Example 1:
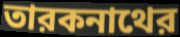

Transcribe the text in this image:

তারকনাথের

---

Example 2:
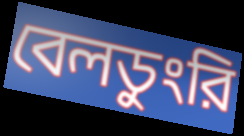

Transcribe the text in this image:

বেলডুংরি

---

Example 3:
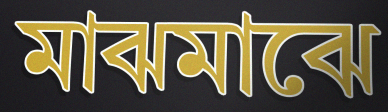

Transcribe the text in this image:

মাঝমাঝে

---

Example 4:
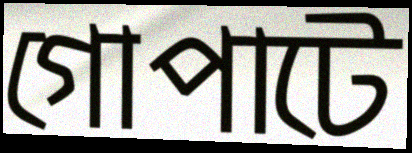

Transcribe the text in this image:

গোপাটে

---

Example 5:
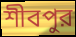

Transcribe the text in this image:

শীবপুর